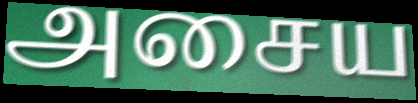
அசைய